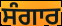
ਸੰਗਾਰ